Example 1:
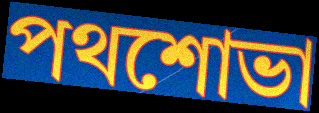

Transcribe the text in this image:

পথশোভা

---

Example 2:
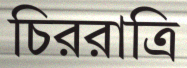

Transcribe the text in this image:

চিররাত্রি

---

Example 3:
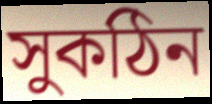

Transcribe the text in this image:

সুকঠিন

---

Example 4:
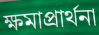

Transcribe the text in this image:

ক্ষমাপ্রার্থনা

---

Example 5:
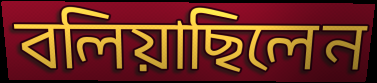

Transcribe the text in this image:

বলিয়াছিলেন